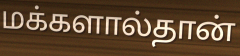
மக்களால்தான்